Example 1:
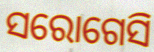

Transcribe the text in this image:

ସରୋଗେସି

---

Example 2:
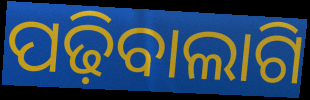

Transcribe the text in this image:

ପଢ଼ିବାଲାଗି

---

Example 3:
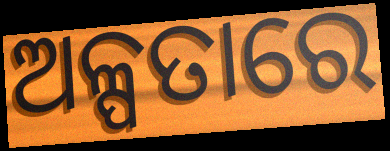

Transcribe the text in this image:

ଅଳ୍ପତାରେ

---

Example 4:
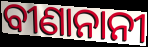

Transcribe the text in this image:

ବୀଣାନାନୀ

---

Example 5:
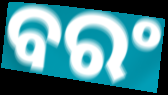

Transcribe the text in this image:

ବରଂ